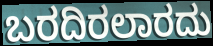
ಬರದಿರಲಾರದು